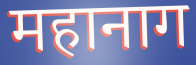
महानाग